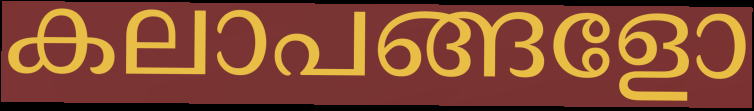
കലാപങ്ങളോ